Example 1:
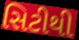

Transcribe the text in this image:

સિટીથી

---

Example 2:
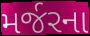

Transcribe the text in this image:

મર્જરના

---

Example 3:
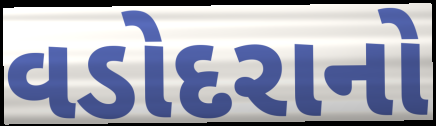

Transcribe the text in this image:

વડોદરાનો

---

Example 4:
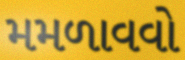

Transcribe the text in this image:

મમળાવવો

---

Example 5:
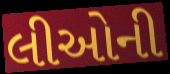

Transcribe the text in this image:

લીઓની